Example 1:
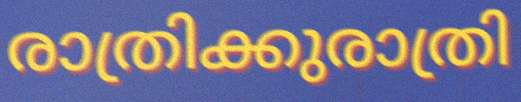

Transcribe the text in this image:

രാത്രിക്കുരാത്രി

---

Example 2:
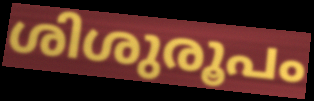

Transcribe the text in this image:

ശിശുരൂപം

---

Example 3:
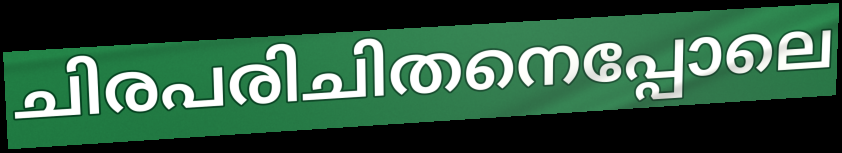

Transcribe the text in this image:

ചിരപരിചിതനെപ്പോലെ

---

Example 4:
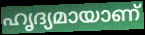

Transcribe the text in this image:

ഹൃദ്യമായാണ്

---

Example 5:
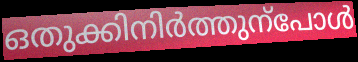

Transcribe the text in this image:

ഒതുക്കിനിർത്തുന്പോൾ